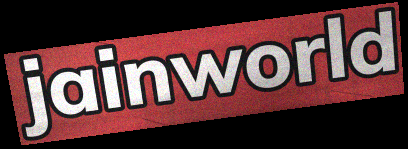
jainworld